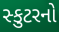
સ્કુટરનો